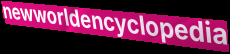
newworldencyclopedia